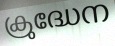
ക്രുദ്ധേന